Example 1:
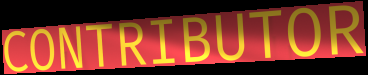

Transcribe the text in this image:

CONTRIBUTOR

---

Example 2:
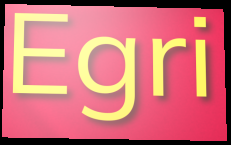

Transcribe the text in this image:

Egri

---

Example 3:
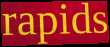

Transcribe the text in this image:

rapids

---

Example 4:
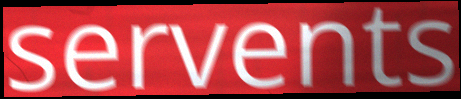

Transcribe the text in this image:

servents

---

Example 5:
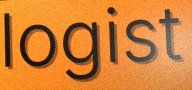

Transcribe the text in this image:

logist